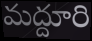
మద్దూరి